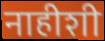
नाहीशी